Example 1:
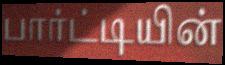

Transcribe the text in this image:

பார்ட்டியின்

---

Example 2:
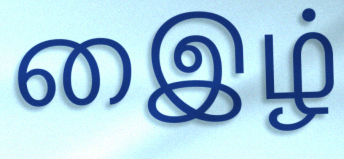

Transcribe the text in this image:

இைழ்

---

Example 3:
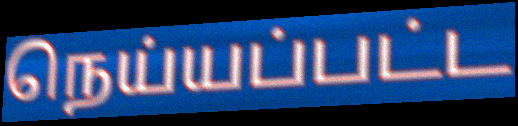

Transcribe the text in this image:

நெய்யப்பட்ட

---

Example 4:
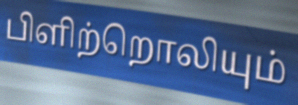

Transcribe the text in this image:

பிளிற்றொலியும்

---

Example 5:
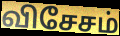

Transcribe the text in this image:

விசேசம்